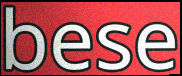
bese